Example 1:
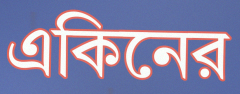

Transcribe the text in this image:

একিনের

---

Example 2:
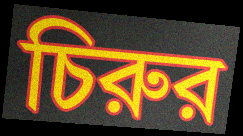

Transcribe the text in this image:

চিরুর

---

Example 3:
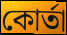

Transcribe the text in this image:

কোর্তা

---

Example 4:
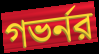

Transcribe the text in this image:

গভর্নর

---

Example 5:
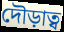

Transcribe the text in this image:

দৌড়াত্ব